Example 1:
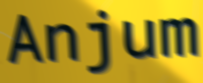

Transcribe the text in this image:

Anjum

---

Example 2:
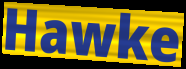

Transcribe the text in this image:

Hawke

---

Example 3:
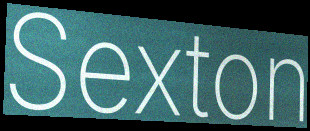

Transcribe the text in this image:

Sexton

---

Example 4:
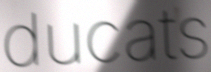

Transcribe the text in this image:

ducats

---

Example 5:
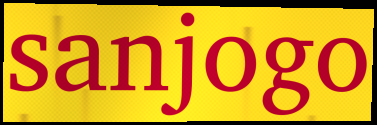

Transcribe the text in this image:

sanjogo